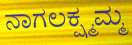
ನಾಗಲಕ್ಷ್ಮಮ್ಮ